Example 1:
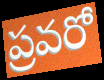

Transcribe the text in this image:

ప్రవరో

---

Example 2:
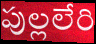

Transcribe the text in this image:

పుల్లలేరి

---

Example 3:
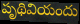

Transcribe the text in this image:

పృథివియందు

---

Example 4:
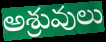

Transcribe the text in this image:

అశ్రువులు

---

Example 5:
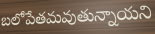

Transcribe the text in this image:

బలోపేతమవుతున్నాయని